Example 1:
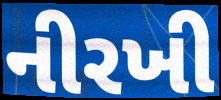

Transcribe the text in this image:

નીરખી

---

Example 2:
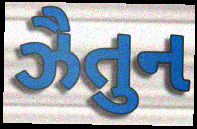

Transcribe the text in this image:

ઝૈતુન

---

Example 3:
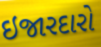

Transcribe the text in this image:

ઇજારદારો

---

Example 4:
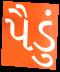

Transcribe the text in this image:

પૈડું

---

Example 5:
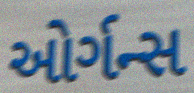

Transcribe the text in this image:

ઓર્ગન્સ